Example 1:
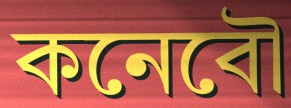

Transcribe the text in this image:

কনেবৌ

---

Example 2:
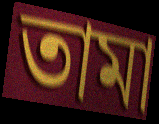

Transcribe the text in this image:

তামা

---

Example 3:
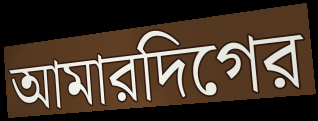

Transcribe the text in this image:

আমারদিগের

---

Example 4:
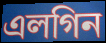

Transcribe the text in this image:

এলগিন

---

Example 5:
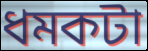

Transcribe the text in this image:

ধমকটা